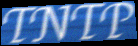
TNTP